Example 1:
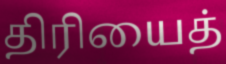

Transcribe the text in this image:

திரியைத்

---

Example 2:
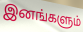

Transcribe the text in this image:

இனங்களும்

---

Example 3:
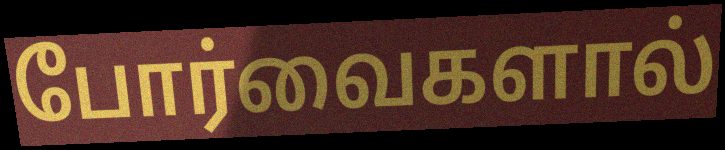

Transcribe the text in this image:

போர்வைகளால்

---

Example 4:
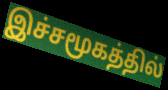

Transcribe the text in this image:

இச்சமூகத்தில்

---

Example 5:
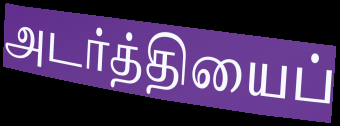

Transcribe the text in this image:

அடர்த்தியைப்